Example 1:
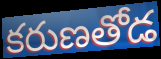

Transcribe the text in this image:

కరుణతోడ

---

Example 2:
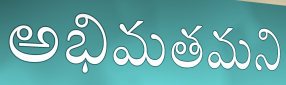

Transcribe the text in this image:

అభిమతమని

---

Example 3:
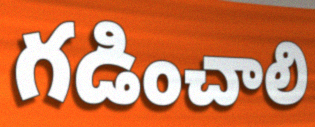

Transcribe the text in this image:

గడించాలి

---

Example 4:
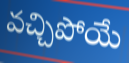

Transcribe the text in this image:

వచ్చిపోయే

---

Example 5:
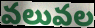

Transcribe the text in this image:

వలువల